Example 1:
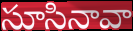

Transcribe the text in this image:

సూసినావా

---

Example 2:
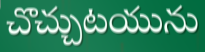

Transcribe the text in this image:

చొచ్చుటయును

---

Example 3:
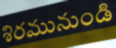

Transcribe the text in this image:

శిరమునుండి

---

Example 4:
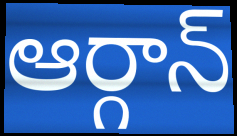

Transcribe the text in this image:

ఆర్గాన్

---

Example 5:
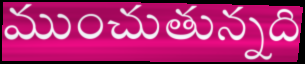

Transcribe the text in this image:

ముంచుతున్నది